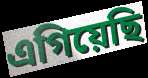
এগিয়েছি